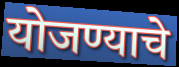
योजण्याचे